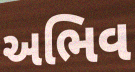
અભિવ